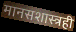
मानसशास्त्रही